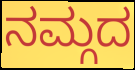
ನಮ್ಗದ